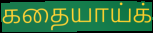
கதையாய்க்